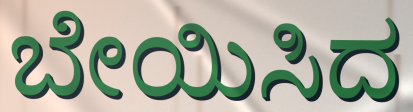
ಬೇಯಿಸಿದ